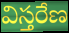
విస్తరేణ